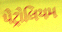
પેટ્રોલિયમ